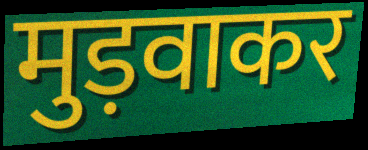
मुड़वाकर